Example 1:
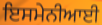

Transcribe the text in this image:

ਇਸਮੇਨੀਆਈ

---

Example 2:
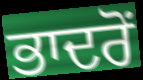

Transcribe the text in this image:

ਭਾਦਰੋਂ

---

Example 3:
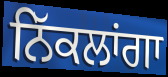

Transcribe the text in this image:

ਨਿੱਕਲਾਂਗਾ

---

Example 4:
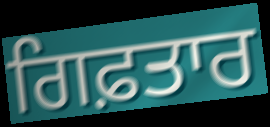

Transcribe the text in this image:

ਗਿਫ਼ਤਾਰ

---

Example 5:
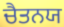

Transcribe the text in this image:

ਚੈਤਨਯ